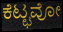
ಕೆಟ್ಟವೋ